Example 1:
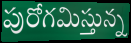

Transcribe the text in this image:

పురోగమిస్తున్న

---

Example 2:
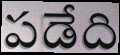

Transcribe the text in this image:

పడేది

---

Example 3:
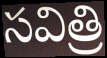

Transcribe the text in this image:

సవిత్రి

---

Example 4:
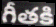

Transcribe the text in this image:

గీతకి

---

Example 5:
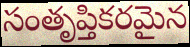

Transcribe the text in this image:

సంతృప్తికరమైన